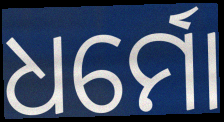
ଧର୍ମୋ